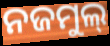
ନଜମୁଲ୍